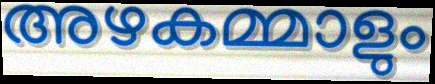
അഴകമ്മാളും